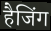
हैजिंग